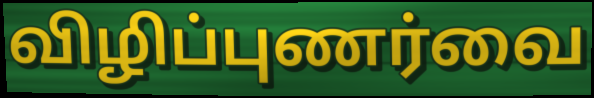
விழிப்புணர்வை